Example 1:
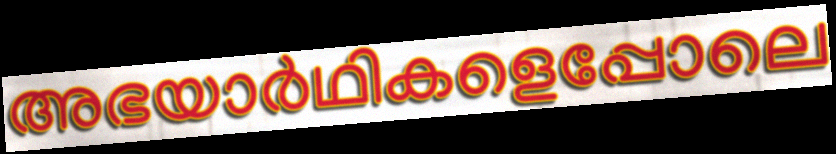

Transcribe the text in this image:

അഭയാർഥികളെപ്പോലെ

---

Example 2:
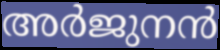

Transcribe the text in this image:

അർജുനൻ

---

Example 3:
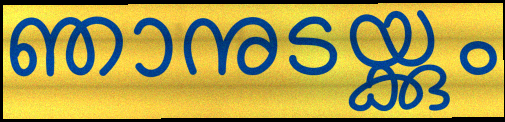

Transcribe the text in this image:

ഞാനുടയ്ക്കും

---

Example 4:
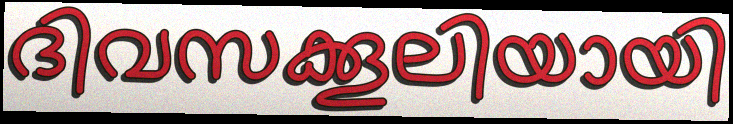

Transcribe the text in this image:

ദിവസക്കൂലിയായി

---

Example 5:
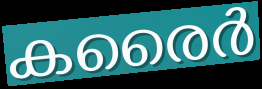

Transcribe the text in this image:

കരൈർ